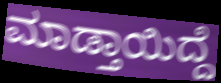
ಮಾಡ್ತಾಯಿದ್ದೆ